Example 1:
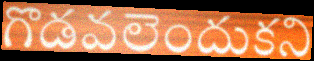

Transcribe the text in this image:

గొడవలెందుకని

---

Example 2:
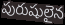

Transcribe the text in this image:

పురుషులైన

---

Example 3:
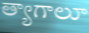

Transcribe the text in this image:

త్యాగాలూ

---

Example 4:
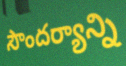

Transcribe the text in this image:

సౌందర్యాన్ని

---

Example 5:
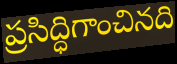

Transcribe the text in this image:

ప్రసిద్ధిగాంచినది